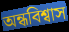
অন্ধবিশ্বাস